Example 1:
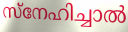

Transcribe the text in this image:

സ്നേഹിച്ചാൽ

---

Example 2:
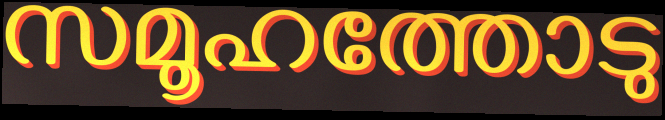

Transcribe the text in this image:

സമൂഹത്തോടു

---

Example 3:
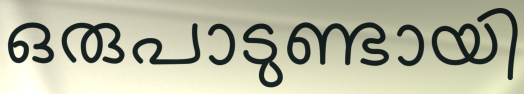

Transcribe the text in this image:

ഒരുപാടുണ്ടായി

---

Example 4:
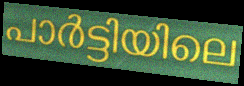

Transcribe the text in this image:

പാർട്ടിയിലെ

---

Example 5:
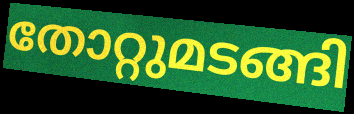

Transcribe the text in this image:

തോറ്റുമടങ്ങി